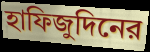
হাফিজুদিনের